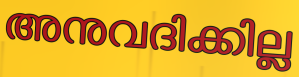
അനുവദിക്കില്ല